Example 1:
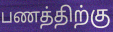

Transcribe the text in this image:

பணத்திற்கு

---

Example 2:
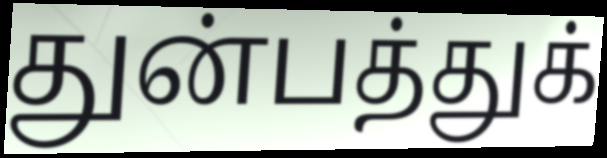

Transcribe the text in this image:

துன்பத்துக்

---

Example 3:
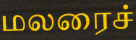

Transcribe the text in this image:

மலரைச்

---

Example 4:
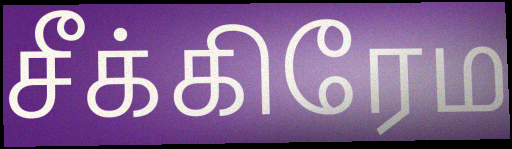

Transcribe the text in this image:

சீக்கிரேம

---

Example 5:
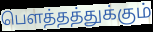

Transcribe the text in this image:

பௌத்தத்துக்கும்